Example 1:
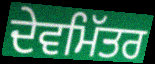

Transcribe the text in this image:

ਦੇਵਮਿੱਤਰ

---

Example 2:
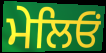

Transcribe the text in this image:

ਮੇਲਿਓਂ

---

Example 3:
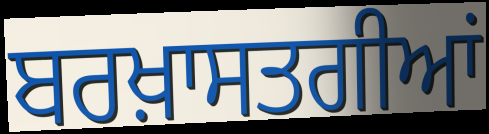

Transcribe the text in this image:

ਬਰਖ਼ਾਸਤਗੀਆਂ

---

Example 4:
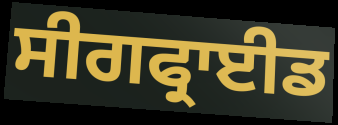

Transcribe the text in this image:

ਸੀਗਫ੍ਰਾਈਡ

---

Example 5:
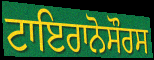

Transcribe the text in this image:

ਟਾਇਰਾਨੋਸੌਰਸ